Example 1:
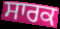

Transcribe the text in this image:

ਸਾਰਕ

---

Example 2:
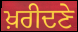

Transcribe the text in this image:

ਖ਼ਰੀਦਣੇ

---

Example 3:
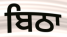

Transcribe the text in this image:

ਬਿਠਾ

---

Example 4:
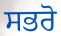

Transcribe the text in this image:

ਸਭਰੋ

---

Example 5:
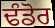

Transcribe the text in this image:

ਢੰਡੋਰ